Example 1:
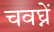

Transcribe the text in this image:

चवघ्नें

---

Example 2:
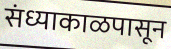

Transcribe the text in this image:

संध्याकाळपासून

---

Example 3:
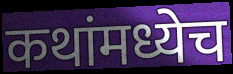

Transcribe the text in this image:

कथांमध्येच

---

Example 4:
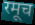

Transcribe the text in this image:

रमूच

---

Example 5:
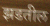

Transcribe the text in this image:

झडतील